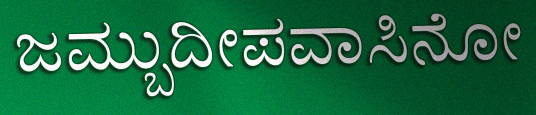
ಜಮ್ಬುದೀಪವಾಸಿನೋ